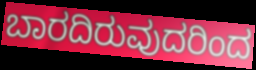
ಬಾರದಿರುವುದರಿಂದ